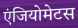
एंजियोमेटस